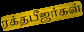
ரக்தபீஜர்கள்